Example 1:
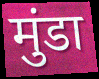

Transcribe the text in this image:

मुंडा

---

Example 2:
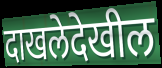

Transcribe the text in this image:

दाखलेदेखील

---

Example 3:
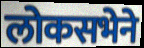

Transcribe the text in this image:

लोकसभेने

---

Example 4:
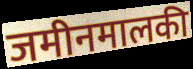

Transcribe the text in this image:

जमीनमालकी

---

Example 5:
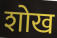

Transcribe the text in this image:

शोख